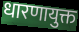
धारणायुक्त